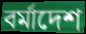
বর্মাদেশ